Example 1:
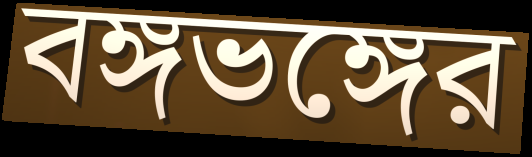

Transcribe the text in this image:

বঙ্গভঙ্গের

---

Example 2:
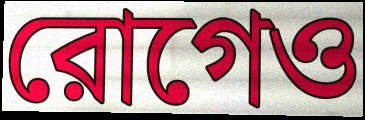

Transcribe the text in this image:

রোগেও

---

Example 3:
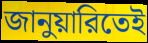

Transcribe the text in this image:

জানুয়ারিতেই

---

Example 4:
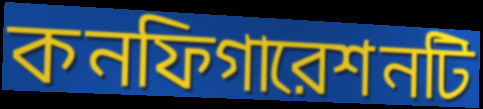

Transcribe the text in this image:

কনফিগারেশনটি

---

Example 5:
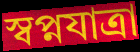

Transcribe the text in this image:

স্বপ্নযাত্রা